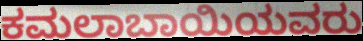
ಕಮಲಾಬಾಯಿಯವರು